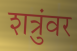
शत्रुंवर